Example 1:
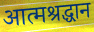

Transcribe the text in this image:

आत्मश्रद्धान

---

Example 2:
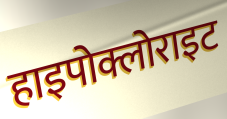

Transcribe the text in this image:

हाइपोक्लोराइट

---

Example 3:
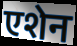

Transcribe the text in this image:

एशेन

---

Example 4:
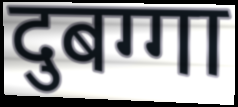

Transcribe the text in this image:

दुबग्गा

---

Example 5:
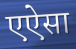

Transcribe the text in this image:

एऐसा